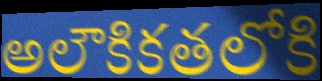
అలౌకికతలోకి